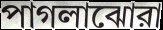
পাগলাঝোরা